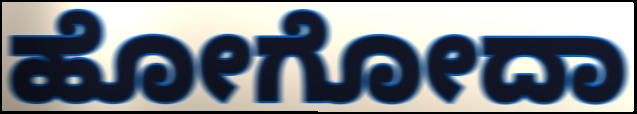
ಹೋಗೋದಾ